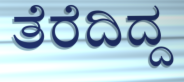
ತೆರೆದಿದ್ದ